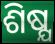
ଶିଷ୍ଯ